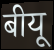
बीयू